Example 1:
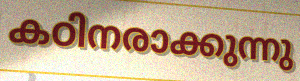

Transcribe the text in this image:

കഠിനരാക്കുന്നു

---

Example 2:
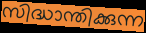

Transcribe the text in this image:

സിദ്ധാന്തിക്കുന്ന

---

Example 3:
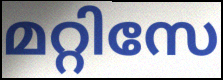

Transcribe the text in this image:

മറ്റിസേ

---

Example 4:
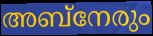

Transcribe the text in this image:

അബ്നേരും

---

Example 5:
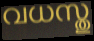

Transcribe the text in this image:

വധസ്തു